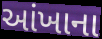
આંખાના